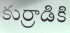
కుర్రాడికి